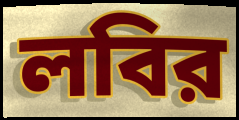
লবির